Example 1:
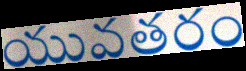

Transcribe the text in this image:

యువతరం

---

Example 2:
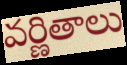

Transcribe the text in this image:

వర్ణితాలు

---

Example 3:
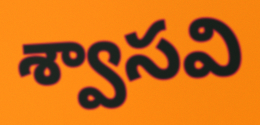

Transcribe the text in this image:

శ్వాసవి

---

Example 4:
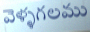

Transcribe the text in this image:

వెళ్ళగలము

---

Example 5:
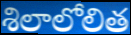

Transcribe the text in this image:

శిలాలోలిత